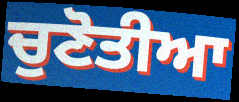
ਚੁਣੋਤੀਆ